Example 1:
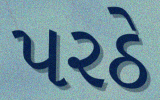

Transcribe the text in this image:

પરઠે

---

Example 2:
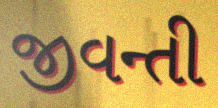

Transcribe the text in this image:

જીવન્તી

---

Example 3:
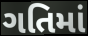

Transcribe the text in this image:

ગતિમાં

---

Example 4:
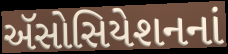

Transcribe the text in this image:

ઍસોસિયેશનનાં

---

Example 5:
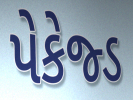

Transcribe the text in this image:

પેકેજ્ડ